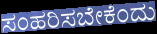
ಸಂಹರಿಸಬೇಕೆಂದು